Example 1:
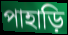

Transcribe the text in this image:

পাহাড়ি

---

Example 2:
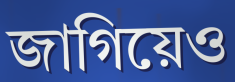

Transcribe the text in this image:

জাগিয়েও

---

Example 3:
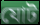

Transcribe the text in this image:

যোট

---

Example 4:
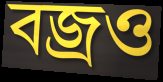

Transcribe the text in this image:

বজ্রও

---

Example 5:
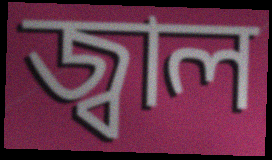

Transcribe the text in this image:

জ্বাল